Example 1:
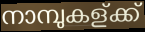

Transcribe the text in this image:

നാമ്പുകള്ക്ക്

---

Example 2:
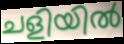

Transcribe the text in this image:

ചളിയിൽ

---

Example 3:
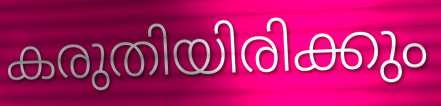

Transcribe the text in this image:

കരുതിയിരിക്കും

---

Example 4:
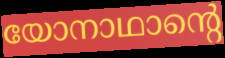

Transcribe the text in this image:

യോനാഥാന്റെ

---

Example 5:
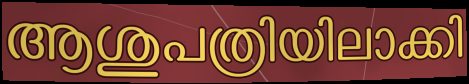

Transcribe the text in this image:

ആശുപത്രിയിലാക്കി